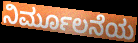
ನಿರ್ಮೂಲನೆಯ